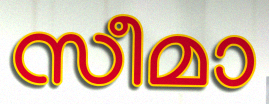
സീമാ